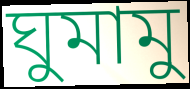
ঘুমামু